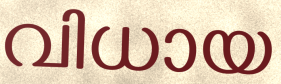
വിധായ